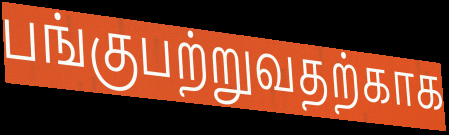
பங்குபற்றுவதற்காக